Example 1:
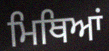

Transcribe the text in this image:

ਮਿਥਿਆਂ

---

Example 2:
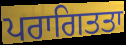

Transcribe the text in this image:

ਪਰਾਗਿਤਤਾ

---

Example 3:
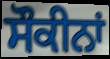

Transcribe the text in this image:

ਸੌਕੀਨਾਂ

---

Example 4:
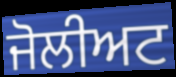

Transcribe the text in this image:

ਜੋਲੀਅਟ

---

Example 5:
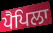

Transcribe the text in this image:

ਪੈਪਿਲਾ